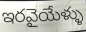
ఇరవైయేళ్ళు